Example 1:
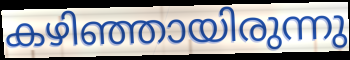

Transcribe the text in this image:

കഴിഞ്ഞായിരുന്നു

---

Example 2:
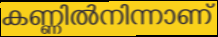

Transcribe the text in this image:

കണ്ണിൽനിന്നാണ്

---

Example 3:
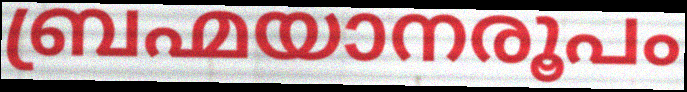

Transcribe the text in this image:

ബ്രഹ്മയാനരൂപം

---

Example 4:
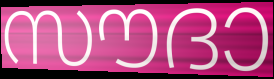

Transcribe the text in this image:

സൗദാ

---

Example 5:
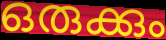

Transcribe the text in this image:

ഒരുക്കും